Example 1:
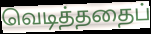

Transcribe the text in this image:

வெடித்ததைப்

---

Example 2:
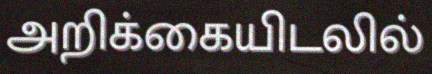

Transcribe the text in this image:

அறிக்கையிடலில்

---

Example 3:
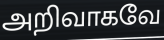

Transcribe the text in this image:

அறிவாகவே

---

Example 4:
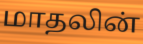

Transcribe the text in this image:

மாதலின்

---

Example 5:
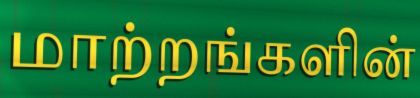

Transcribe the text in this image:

மாற்றங்களின்